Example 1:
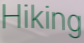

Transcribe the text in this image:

Hiking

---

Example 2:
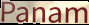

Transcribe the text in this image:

Panam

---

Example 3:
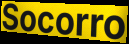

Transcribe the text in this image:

Socorro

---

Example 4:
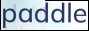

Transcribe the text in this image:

paddle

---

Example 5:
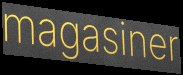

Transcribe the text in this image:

magasiner